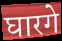
घारगे